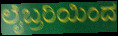
ಲೈಬ್ರರಿಯಿಂದ